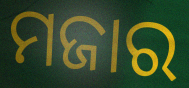
ମଜାର